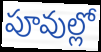
పూవుల్లో